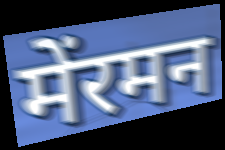
मेंरमन